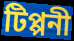
টিপ্পনী